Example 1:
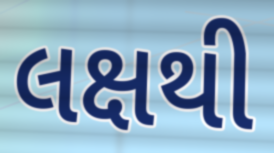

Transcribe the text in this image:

લક્ષથી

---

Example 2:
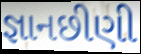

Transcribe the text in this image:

જ્ઞાનછીણી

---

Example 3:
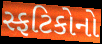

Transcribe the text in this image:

સ્ફટિકોનો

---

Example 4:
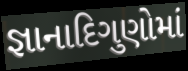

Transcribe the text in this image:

જ્ઞાનાદિગુણોમાં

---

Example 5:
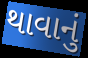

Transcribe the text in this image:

થાવાનું